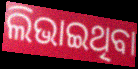
ଲିଭାଇଥିବା